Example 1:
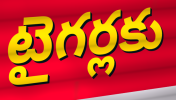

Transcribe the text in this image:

టైగర్లకు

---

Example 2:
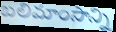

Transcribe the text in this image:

బలిమాంసాన్ని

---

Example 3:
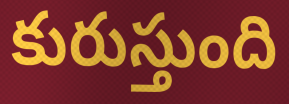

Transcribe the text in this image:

కురుస్తుంది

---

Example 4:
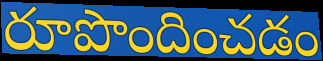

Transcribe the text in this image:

రూపొందించడం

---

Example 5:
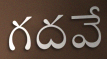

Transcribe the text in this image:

గదవే